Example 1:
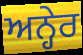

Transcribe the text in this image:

ਅਨ੍ਹੇਰ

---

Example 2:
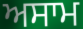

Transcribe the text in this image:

ਅਸਾਮ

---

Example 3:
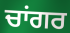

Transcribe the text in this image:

ਚਾਂਗਰ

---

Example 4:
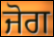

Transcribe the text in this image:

ਜੋਗ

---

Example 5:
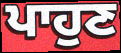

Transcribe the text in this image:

ਪਾਹੁਣ